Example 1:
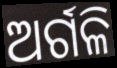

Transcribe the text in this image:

ଅର୍ଗଳି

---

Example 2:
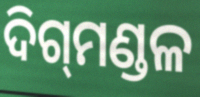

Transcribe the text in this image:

ଦିଗ୍‍ମଣ୍ଡଳ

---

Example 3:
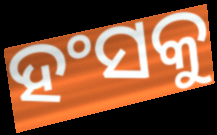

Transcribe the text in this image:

ହଂସକୁ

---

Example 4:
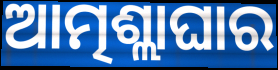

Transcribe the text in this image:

ଆତ୍ମଶ୍ଲାଘାର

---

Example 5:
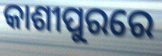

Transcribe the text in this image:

କାଶୀପୁରରେ